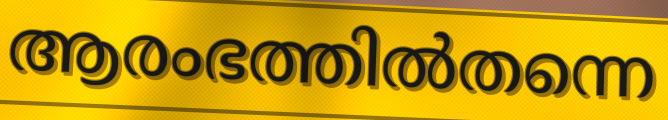
ആരംഭത്തിൽതന്നെ